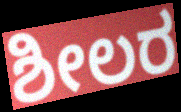
ಶೀಲರ